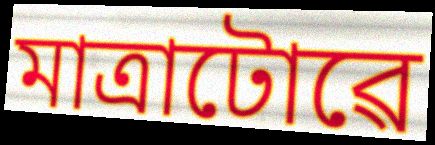
মাত্ৰাটোৱে